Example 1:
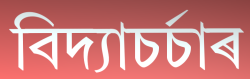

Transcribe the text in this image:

বিদ্যাচৰ্চাৰ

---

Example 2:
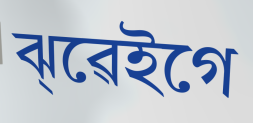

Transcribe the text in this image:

ঝ্ৱেইগে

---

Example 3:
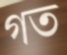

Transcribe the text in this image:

গত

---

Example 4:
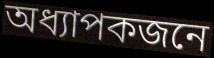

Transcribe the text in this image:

অধ্যাপকজনে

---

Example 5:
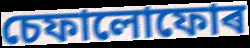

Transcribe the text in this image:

চেফালোফোৰ